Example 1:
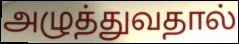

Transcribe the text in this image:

அழுத்துவதால்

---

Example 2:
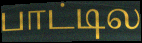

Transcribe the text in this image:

பாட்டில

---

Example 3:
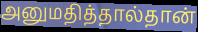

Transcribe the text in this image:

அனுமதித்தால்தான்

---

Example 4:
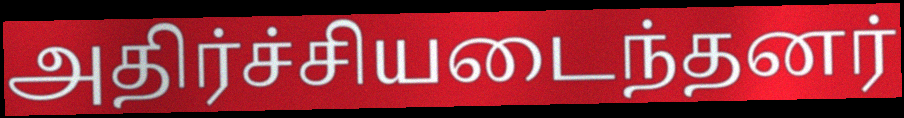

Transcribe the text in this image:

அதிர்ச்சியடைந்தனர்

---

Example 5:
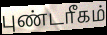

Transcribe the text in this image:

புண்டரீகம்